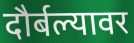
दौर्बल्यावर